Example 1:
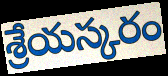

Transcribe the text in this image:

శ్రేయస్కరం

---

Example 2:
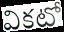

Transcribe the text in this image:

వికటో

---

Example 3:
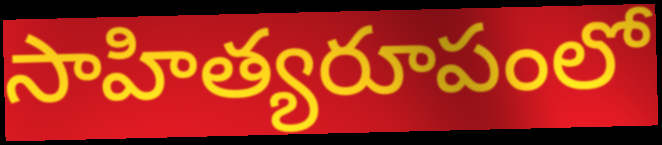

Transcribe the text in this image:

సాహిత్యరూపంలో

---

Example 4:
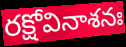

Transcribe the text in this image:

రక్షోవినాశనః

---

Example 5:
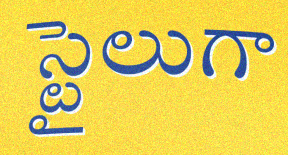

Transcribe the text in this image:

స్టైలుగా